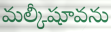
మల్కీషూవను